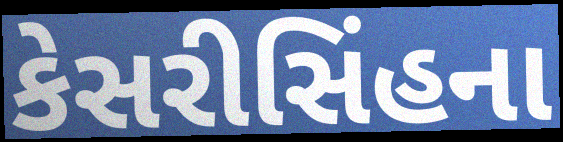
કેસરીસિંહના